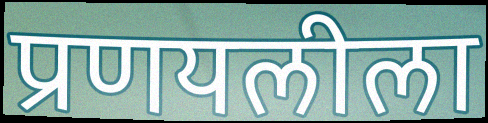
प्रणयलीला